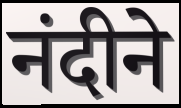
नंदीने